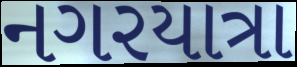
નગરયાત્રા